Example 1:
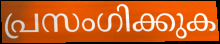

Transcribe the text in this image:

പ്രസംഗിക്കുക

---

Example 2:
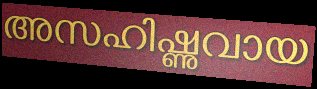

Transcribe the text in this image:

അസഹിഷ്ണുവായ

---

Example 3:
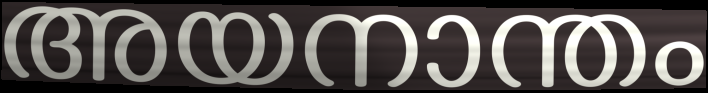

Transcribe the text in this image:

അയനാന്തം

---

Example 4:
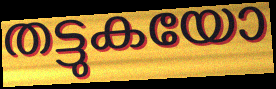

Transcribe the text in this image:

തട്ടുകയോ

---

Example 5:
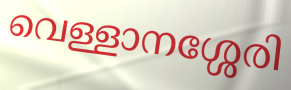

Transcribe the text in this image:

വെള്ളാനശ്ശേരി